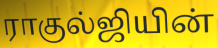
ராகுல்ஜியின்